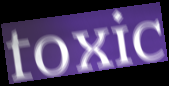
toxic